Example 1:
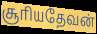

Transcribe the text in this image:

சூரியதேவன்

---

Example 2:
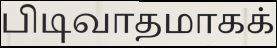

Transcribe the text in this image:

பிடிவாதமாகக்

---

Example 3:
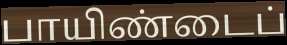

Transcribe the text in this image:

பாயிண்டைப்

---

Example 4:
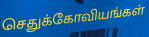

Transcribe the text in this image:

செதுக்கோவியங்கள்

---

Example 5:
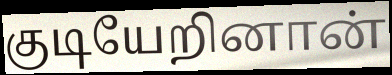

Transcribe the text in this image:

குடியேறினான்